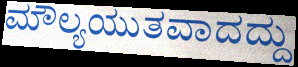
ಮೌಲ್ಯಯುತವಾದದ್ದು